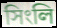
সিংলি